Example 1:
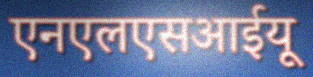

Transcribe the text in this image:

एनएलएसआईयू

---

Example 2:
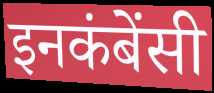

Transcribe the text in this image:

इनकंबेंसी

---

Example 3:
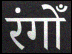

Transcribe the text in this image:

रंगोँ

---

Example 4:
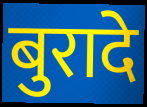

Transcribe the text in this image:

बुरादे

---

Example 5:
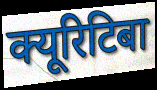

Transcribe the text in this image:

क्यूरिटिबा